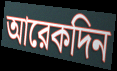
আরেকদিন